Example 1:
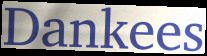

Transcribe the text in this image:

Dankees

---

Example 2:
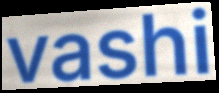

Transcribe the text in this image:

vashi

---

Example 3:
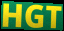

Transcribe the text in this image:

HGT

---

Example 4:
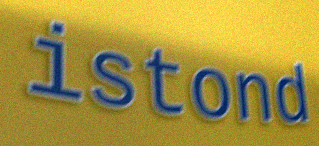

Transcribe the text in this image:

istond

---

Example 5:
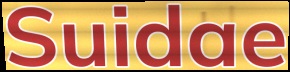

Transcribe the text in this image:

Suidae